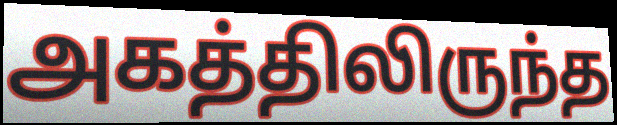
அகத்திலிருந்த